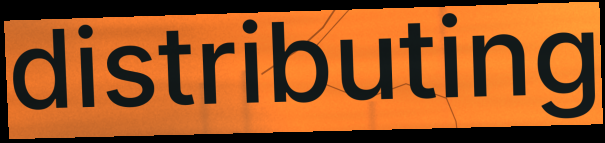
distributing